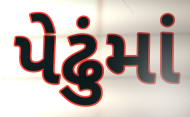
પેઢુંમાં